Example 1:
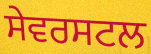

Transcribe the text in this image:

ਸੇਵਰਸਟਲ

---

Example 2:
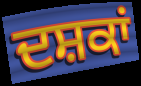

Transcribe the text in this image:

ਦਸ਼ਕਾਂ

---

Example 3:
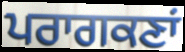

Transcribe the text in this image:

ਪਰਾਗਕਣਾਂ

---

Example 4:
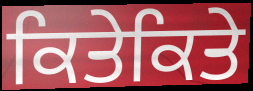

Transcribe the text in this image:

ਕਿਤੇਕਿਤੇ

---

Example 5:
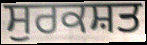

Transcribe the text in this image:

ਸੁਰਕਸ਼ਤ